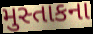
મુસ્તાકના